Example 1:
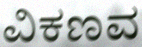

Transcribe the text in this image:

ವಿಕಣವ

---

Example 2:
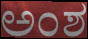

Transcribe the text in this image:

ಅಂಶ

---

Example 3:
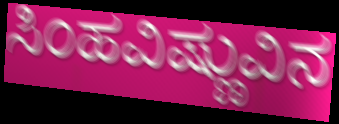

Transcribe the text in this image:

ಸಿಂಹವಿಷ್ಣುವಿನ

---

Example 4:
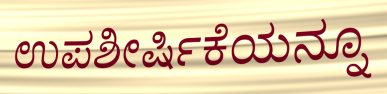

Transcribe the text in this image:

ಉಪಶೀರ್ಷಿಕೆಯನ್ನೂ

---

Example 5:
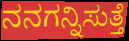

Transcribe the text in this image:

ನನಗನ್ನಿಸುತ್ತೆ